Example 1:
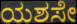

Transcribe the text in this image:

ಯಶಸೇ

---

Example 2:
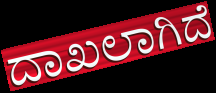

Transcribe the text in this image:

ದಾಖಲಾಗಿದೆ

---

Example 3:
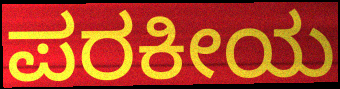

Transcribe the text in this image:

ಪರಕೀಯ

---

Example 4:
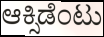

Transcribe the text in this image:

ಆಕ್ಸಿಡೆಂಟು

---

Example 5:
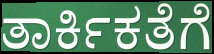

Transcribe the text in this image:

ತಾರ್ಕಿಕತೆಗೆ